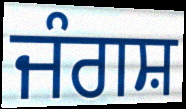
ਜੰਗਸ਼